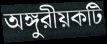
অঙ্গুরীয়কটি